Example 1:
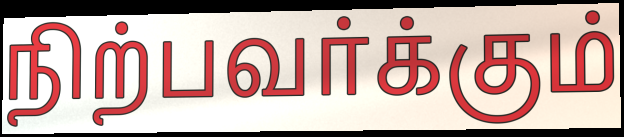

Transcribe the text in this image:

நிற்பவர்க்கும்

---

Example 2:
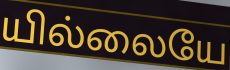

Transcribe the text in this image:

யில்லையே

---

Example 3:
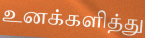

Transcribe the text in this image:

உனக்களித்து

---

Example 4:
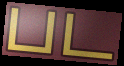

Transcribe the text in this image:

பட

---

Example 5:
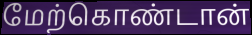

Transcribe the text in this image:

மேற்கொண்டான்